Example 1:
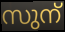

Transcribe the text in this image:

സുന്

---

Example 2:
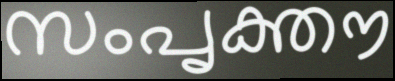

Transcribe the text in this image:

സംപൃക്തൗ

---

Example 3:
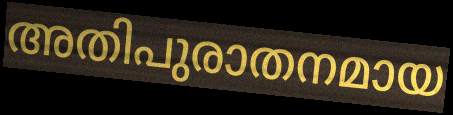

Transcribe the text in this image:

അതിപുരാതനമായ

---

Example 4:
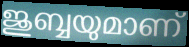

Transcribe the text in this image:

ജുബ്ബയുമാണ്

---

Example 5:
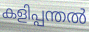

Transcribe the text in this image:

കളിപ്പന്തൽ